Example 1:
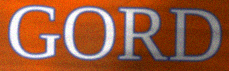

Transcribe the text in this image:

GORD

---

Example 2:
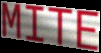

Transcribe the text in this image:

MITE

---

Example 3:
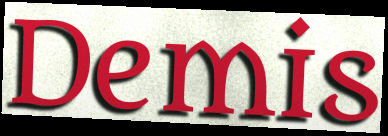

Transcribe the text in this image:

Demis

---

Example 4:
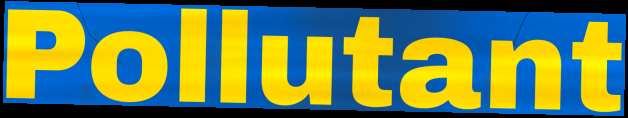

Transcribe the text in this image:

Pollutant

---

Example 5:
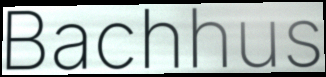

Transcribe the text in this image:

Bachhus